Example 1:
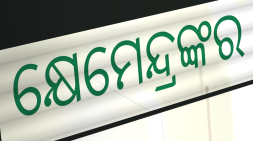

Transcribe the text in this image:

କ୍ଷେମେନ୍ଦ୍ରଙ୍କର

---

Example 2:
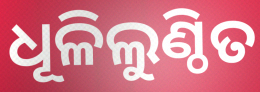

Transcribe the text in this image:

ଧୂଳିଲୁଣ୍ଠିତ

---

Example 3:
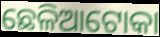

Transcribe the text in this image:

ଛେଳିଆଟୋକା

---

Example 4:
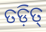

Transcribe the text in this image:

ତଡ଼ିତ୍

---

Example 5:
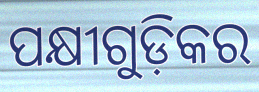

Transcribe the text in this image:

ପକ୍ଷୀଗୁଡ଼ିକର